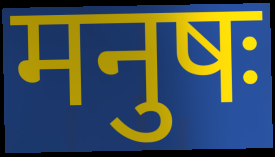
मनुषः